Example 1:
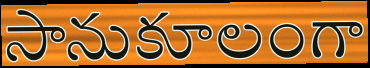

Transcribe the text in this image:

సానుకూలంగా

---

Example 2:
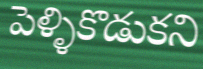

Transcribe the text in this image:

పెళ్ళికొడుకని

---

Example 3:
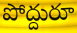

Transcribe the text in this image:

పోద్దురూ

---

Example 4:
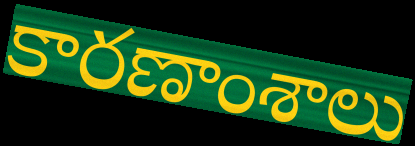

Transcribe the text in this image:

కారణాంశాలు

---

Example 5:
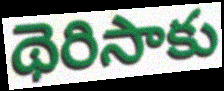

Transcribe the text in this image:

థెరిసాకు